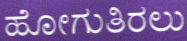
ಹೋಗುತಿರಲು